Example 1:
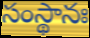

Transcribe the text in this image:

సంస్థానః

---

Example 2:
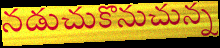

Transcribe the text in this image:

నడుచుకొనుచున్న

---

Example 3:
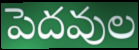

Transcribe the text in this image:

పెదవుల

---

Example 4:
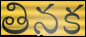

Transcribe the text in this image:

తినక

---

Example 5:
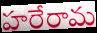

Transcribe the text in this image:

హరేరామ